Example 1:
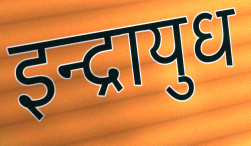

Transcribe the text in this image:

इन्द्रायुध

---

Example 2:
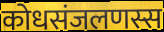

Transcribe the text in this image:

कोधसंजलणस्स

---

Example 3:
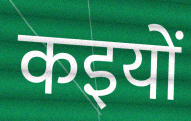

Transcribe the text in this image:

कइयों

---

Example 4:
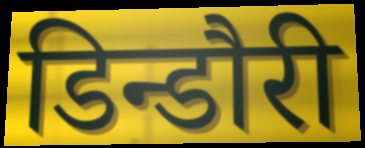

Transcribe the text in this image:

डिन्डौरी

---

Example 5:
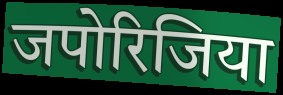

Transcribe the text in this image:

जपोरिजिया